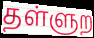
தள்ளுற